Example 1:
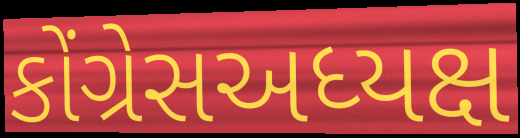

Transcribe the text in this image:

કોંગ્રેસઅધ્યક્ષ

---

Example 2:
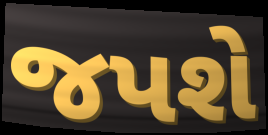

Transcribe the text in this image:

જપશે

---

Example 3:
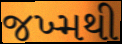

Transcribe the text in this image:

જખ્મથી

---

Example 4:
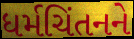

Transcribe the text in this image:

ધર્મચિંતનને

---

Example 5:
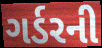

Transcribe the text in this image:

ગર્ડરની